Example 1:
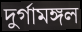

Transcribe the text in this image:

দুর্গামঙ্গল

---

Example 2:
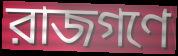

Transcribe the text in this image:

রাজগণে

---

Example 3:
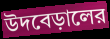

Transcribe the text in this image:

উদবেড়ালের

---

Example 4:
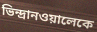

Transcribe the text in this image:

ভিন্দ্রানওয়ালেকে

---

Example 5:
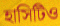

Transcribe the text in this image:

হাসিটিও